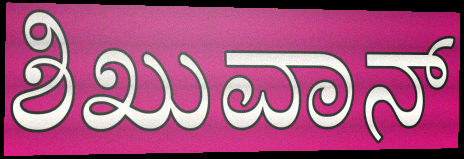
ಶಿಖುವಾನ್